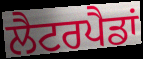
ਲੈਟਰਪੈਡਾਂ